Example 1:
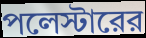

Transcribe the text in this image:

পলেস্টারের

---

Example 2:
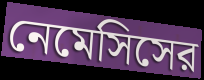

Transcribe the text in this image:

নেমেসিসের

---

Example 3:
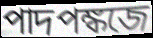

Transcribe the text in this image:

পাদপঙ্কজে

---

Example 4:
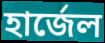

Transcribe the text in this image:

হার্জেল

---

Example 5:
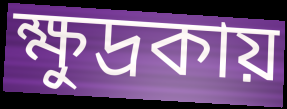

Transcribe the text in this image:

ক্ষুদ্রকায়